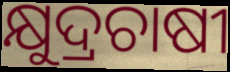
କ୍ଷୁଦ୍ରଚାଷୀ